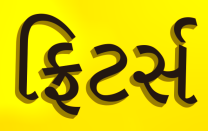
ફ્રિટર્સ